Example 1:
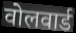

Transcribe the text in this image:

वोलवार्ड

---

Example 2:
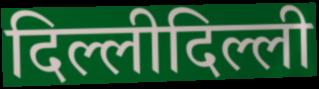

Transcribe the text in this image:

दिल्लीदिल्ली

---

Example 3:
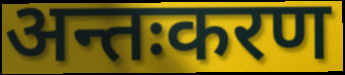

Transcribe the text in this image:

अन्तःकरण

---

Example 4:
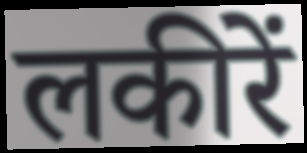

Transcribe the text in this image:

लकीरें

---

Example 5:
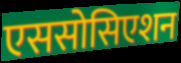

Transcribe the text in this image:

एससोसिएशन